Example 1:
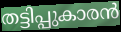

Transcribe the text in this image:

തട്ടിപ്പുകാരൻ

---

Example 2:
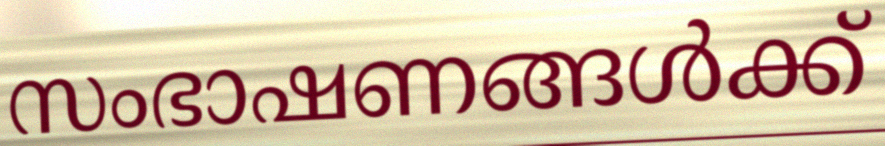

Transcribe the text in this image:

സംഭാഷണങ്ങൾക്ക്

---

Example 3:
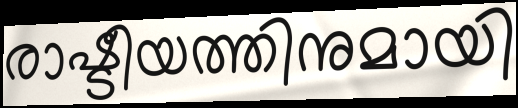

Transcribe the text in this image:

രാഷ്ടീയത്തിനുമായി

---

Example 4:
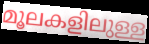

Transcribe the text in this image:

മൂലകളിലുള്ള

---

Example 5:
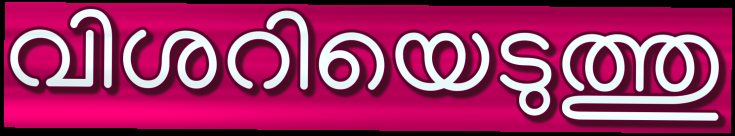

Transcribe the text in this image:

വിശറിയെടുത്തു